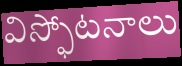
విస్ఫోటనాలు